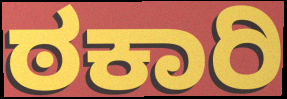
ಠಕಾರಿ